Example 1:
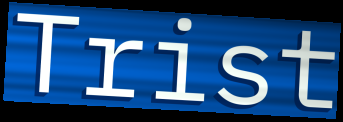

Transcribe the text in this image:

Trist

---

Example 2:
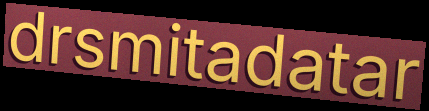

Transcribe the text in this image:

drsmitadatar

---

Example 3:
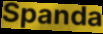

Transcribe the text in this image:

Spanda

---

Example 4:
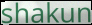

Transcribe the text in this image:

shakun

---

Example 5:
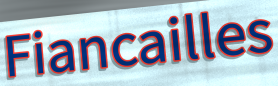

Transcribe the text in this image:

Fiancailles